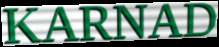
KARNAD